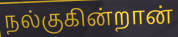
நல்குகின்றான்